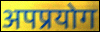
अपप्रयोग